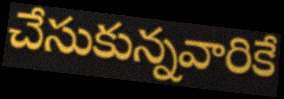
చేసుకున్నవారికే